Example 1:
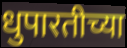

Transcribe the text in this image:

धुपारतीच्या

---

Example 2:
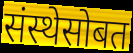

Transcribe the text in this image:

संस्थेसोबत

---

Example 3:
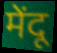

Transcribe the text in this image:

मेंदू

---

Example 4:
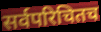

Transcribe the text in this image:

सर्वपरिचितच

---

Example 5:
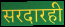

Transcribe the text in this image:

सरदारही